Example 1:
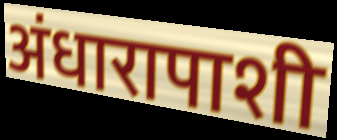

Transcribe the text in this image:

अंधारापाशी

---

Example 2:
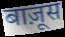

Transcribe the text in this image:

बाज़ूस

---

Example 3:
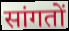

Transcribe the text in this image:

सांगतों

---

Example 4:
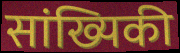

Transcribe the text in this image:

सांख्यिकी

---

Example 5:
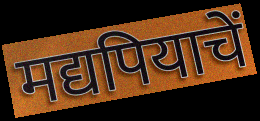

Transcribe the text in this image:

मद्यपियाचें